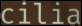
cilia